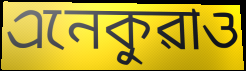
এনেকুৱাও